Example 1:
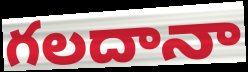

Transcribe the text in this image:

గలదానా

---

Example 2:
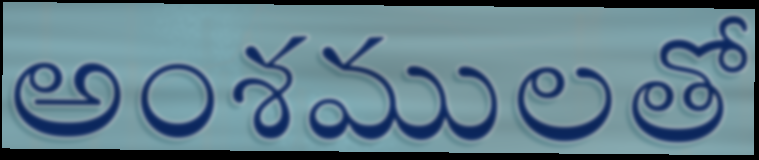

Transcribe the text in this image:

అంశములతో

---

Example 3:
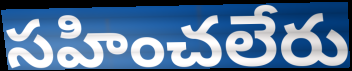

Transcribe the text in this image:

సహించలేరు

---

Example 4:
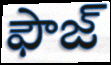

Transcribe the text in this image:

ఫౌజ్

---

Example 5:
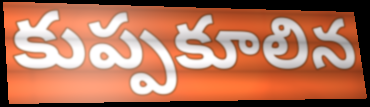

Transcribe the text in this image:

కుప్పకూలిన